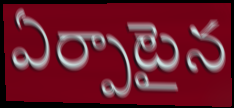
ఏర్పాటైన